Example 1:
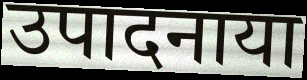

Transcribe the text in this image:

उपादनाया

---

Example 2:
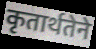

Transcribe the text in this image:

कृतार्थतेने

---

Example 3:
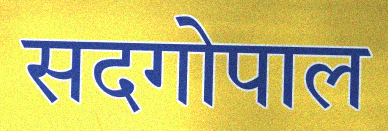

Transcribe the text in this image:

सदगोपाल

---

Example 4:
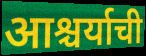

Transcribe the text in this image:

आश्चर्याची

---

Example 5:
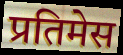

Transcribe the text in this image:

प्रतिमेस